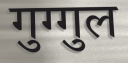
गुग्‍गुल